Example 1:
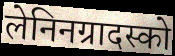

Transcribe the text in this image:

लेनिनग्रादस्को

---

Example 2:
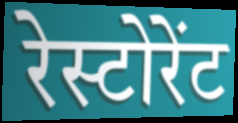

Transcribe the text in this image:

रेस्‍टोरेंट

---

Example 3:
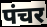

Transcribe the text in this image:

पंचर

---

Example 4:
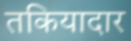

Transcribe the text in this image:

तकियादार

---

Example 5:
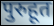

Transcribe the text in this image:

पुरुहूत